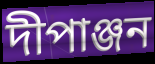
দীপাঞ্জন